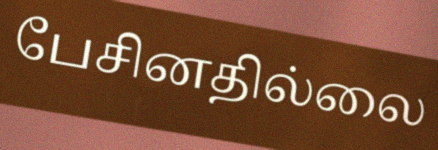
பேசினதில்லை